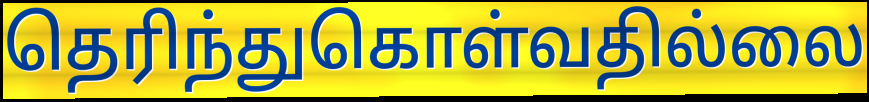
தெரிந்துகொள்வதில்லை